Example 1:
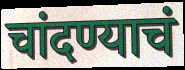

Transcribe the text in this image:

चांदण्याचं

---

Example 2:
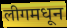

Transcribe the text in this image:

लीगमधून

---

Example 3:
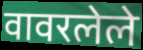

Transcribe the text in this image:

वावरलेले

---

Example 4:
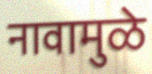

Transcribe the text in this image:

नावामुळे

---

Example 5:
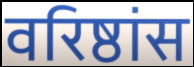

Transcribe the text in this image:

वरिष्ठांस